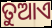
ତୁଆଏ